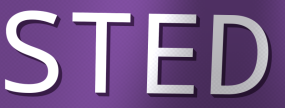
STED